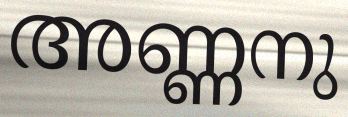
അണ്ണനു